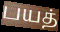
பயத்